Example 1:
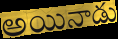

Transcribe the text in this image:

అయినాడు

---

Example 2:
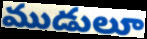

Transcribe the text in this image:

ముడులూ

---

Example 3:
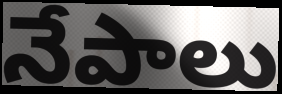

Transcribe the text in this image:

నేపాలు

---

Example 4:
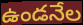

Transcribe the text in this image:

ఉండనేల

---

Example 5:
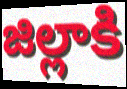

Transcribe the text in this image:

జిల్లాకి